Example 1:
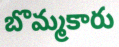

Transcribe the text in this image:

బొమ్మకారు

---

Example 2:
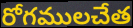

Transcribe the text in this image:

రోగములచేత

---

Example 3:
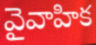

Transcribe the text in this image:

వైవాహిక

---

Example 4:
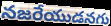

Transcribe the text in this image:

నజరేయుడనగు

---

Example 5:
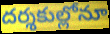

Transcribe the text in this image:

దర్శకుల్లోనూ